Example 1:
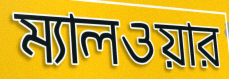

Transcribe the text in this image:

ম্যালওয়ার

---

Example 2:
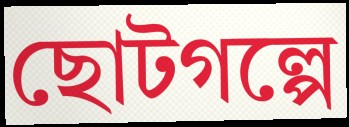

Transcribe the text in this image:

ছোটগল্পে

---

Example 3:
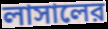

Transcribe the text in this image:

লাসালের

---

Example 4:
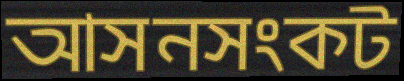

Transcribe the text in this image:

আসনসংকট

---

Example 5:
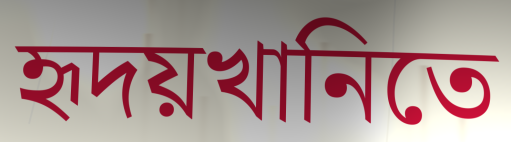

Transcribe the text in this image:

হৃদয়খানিতে